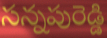
సన్నపురెడ్డి